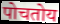
पोचतोय